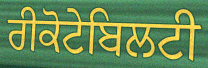
ਰੀਕੋਟੇਬਿਲਟੀ